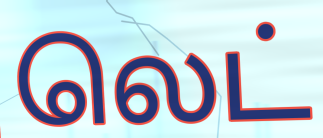
லெட்